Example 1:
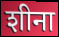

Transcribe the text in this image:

शीना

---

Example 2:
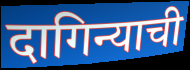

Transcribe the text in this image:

दागिन्याची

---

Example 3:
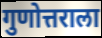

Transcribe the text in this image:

गुणोत्तराला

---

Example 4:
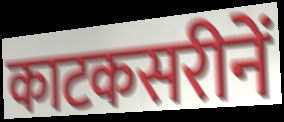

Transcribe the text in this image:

काटकसरीनें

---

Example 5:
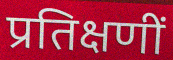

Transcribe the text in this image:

प्रतिक्षणीं